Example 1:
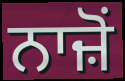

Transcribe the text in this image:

ਨਾਜ਼ੋਂ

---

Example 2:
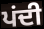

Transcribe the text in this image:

ਪਂਦੀ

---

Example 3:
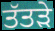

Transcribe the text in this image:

ਤੱਤੜੇ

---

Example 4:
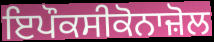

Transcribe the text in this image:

ਇਪੌਕਸੀਕੋਨਾਜ਼ੋਲ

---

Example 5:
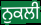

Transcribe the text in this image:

ਨੁਕਲੀ